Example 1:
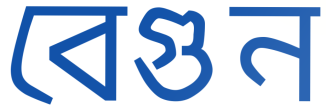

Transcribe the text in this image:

বেগুন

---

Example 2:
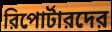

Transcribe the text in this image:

রিপোর্টারদের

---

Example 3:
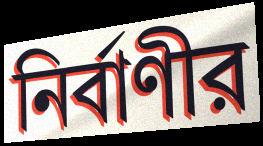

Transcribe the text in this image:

নির্বাণীর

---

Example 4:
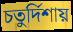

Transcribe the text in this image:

চতুর্দিশায়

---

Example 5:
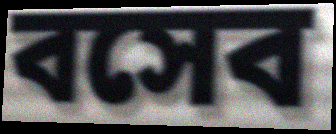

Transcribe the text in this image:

বসেব